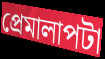
প্রেমালাপটা